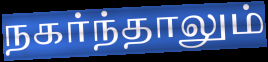
நகர்ந்தாலும்